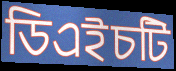
ডিএইচটি